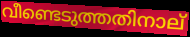
വീണ്ടെടുത്തതിനാല്